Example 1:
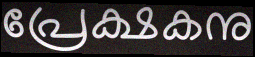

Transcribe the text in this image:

പ്രേക്ഷകനു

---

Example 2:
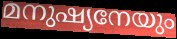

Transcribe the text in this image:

മനുഷ്യനേയും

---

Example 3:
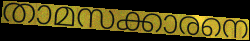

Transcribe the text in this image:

താമസക്കാരനെ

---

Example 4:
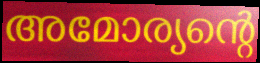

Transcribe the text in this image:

അമോര്യന്റെ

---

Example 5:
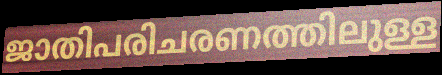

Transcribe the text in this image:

ജാതിപരിചരണത്തിലുള്ള